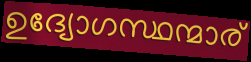
ഉദ്യോഗസ്ഥന്മാര്